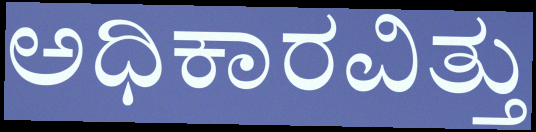
ಅಧಿಕಾರವಿತ್ತು